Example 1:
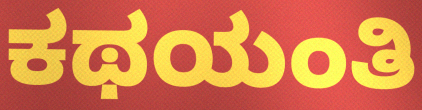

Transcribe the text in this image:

ಕಥಯಂತಿ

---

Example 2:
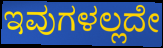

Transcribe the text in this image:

ಇವುಗಳಲ್ಲದೇ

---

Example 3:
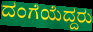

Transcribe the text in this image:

ದಂಗೆಯೆದ್ದರು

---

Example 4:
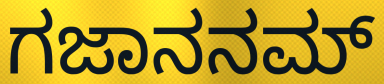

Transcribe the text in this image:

ಗಜಾನನಮ್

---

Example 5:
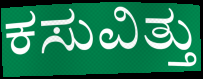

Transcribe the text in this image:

ಕಸುವಿತ್ತು